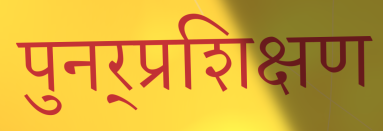
पुनर्प्रशिक्षण